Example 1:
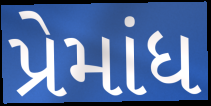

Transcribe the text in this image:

પ્રેમાંધ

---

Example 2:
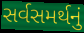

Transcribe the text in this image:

સર્વસમર્થનું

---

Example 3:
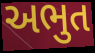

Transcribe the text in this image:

અભુત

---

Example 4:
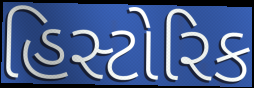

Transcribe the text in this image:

હિસ્ટોરિક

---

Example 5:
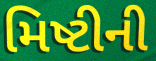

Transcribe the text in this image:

મિષ્ટીની